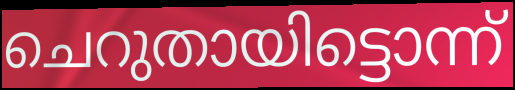
ചെറുതായിട്ടൊന്ന്